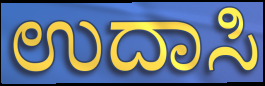
ಉದಾಸಿ